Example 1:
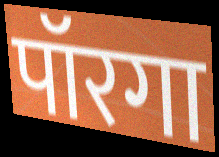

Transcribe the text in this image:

पॉरगा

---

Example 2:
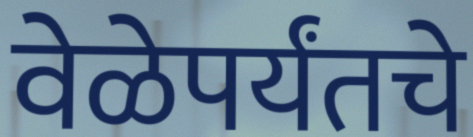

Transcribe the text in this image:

वेळेपर्यंतचे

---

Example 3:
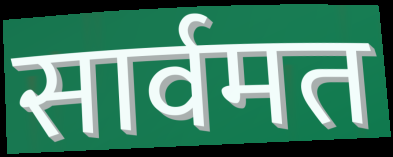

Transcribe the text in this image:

सार्वमत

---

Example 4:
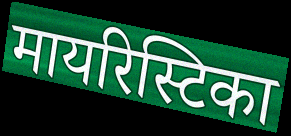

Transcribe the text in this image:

मायरिस्टिका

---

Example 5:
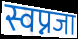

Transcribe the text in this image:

स्वप्नजा